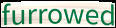
furrowed